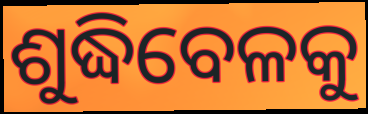
ଶୁଦ୍ଧିବେଳକୁ